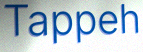
Tappeh